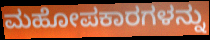
ಮಹೋಪಕಾರಗಳನ್ನು